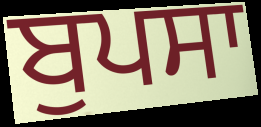
ਬੁਪਸਾ